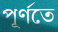
পূর্ণতে